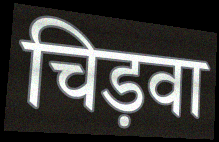
चिड़वा